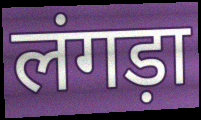
लंगड़ा